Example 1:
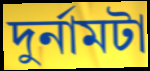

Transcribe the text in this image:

দুর্নামটা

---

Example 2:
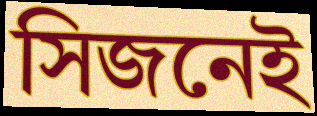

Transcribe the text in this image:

সিজনেই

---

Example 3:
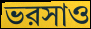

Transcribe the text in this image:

ভরসাও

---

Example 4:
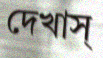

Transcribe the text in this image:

দেখাস্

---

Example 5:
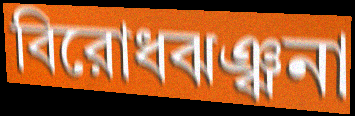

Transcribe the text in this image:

বিরোধঝঞ্ঝনা